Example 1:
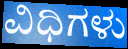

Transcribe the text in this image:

ವಿಧಿಗಳು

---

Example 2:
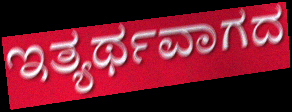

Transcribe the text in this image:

ಇತ್ಯರ್ಥವಾಗದ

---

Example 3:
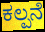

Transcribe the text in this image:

ಕಲ್ಪನೆ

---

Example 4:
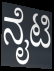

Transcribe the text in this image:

ನೈಟಿ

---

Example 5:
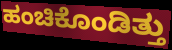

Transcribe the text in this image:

ಹಂಚಿಕೊಂಡಿತ್ತು